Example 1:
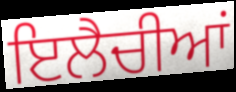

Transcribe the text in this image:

ਇਲੈਚੀਆਂ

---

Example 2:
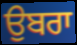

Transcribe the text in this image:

ਉਬਰਾ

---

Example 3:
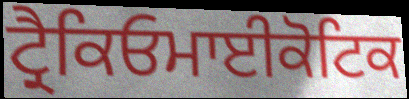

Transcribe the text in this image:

ਟ੍ਰੈਕਿਓਮਾਈਕੋਟਿਕ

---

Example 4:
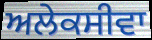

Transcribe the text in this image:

ਅਲੇਕਸੀਵਾ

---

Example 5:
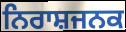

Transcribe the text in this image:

ਨਿਰਾਸ਼ਜਨਕ